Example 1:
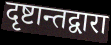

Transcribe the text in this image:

दृष्टान्तद्वारा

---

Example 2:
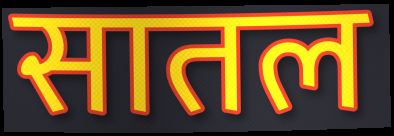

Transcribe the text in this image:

सातल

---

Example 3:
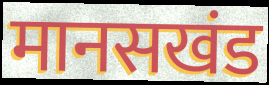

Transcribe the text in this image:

मानसखंड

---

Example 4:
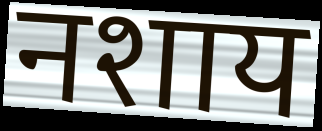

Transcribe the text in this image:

नशाय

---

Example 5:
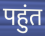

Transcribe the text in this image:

पहुंत